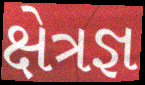
ક્ષેત્રજ્ઞ